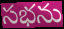
సభను